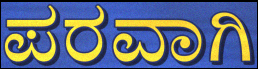
ಪರವಾಗಿ